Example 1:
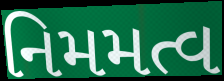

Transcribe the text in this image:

નિમમત્વ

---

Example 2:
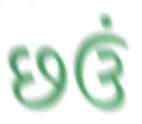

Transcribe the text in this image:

છઉં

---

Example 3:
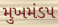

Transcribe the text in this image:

મુખમંડપ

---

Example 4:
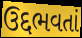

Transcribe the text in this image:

ઉદ્દભવતાં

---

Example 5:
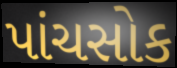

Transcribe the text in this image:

પાંચસોક